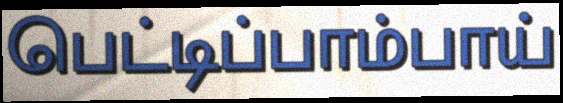
பெட்டிப்பாம்பாய்